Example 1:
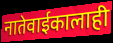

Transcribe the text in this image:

नातेवाईकालाही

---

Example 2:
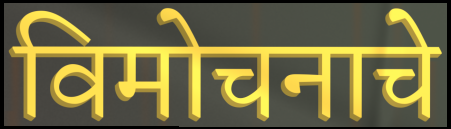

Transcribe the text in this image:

विमोचनाचे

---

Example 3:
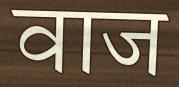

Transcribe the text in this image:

वाज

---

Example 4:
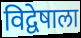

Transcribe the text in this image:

विद्वेषाला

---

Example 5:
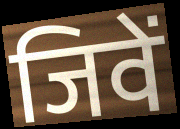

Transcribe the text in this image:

जिवें